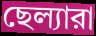
ছেল্যারা